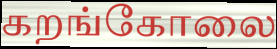
கறங்கோலை